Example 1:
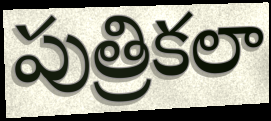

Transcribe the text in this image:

పుత్రికలా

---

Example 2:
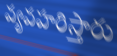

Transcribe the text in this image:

వ్యవహరిస్తారు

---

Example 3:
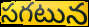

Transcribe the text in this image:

సగటున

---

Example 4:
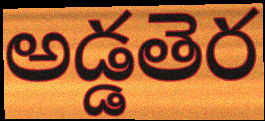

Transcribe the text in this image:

అడ్డతెర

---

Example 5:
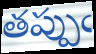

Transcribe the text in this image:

తప్పుఁ